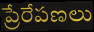
ప్రేరేపణలు